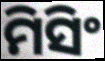
ମିସିଂ